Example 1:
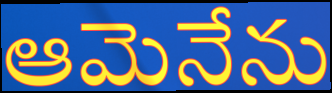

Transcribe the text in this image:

ఆమెనేను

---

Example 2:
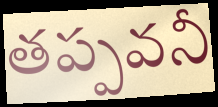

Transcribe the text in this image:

తప్పవనీ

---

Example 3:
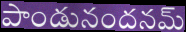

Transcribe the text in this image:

పాండునందనమ్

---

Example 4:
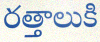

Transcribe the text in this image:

రత్తాలుకి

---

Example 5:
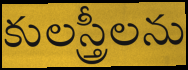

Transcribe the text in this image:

కులస్త్రీలను